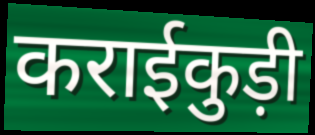
कराईकुड़ी